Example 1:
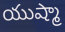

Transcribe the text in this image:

యుష్మా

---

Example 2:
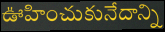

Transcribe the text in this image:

ఊహించుకునేదాన్ని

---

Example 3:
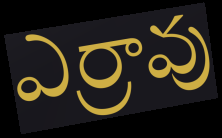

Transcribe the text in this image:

ఎర్రావు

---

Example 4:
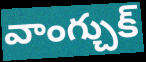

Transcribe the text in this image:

వాంగ్చుక్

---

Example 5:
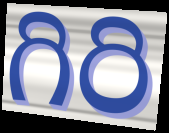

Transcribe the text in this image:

గిరి